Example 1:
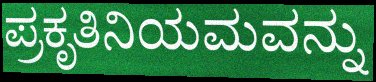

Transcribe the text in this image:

ಪ್ರಕೃತಿನಿಯಮವನ್ನು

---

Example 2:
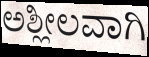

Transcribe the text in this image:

ಅಶ್ಲೀಲವಾಗಿ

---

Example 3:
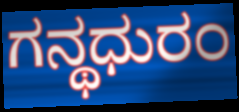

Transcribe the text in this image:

ಗನ್ಥಧುರಂ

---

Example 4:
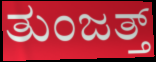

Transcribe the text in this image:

ತುಂಜತ್ತ್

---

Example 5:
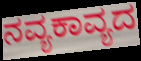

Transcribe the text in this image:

ನವ್ಯಕಾವ್ಯದ